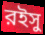
রইসু